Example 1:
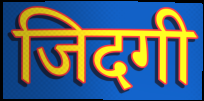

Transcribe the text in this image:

जिदगी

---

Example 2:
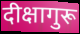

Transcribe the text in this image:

दीक्षागुरू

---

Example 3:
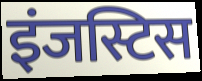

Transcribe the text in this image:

इंजस्टिस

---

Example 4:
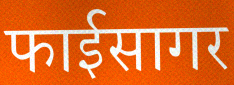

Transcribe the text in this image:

फाईसागर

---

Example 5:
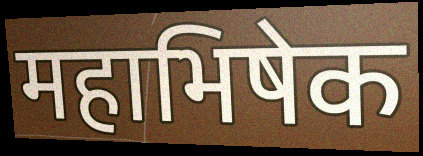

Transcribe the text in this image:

महाभिषेक